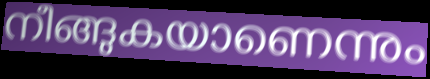
നീങ്ങുകയാണെന്നും